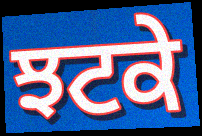
ਝਟਕੇ